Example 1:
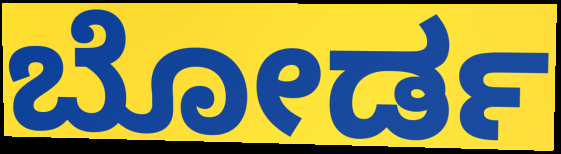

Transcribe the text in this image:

ಬೋರ್ಡ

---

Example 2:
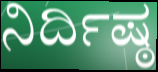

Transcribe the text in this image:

ನಿರ್ದಿಷ್ಠ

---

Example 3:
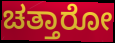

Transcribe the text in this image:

ಚತ್ತಾರೋ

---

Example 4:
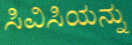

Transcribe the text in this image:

ಸಿವಿಸಿಯನ್ನು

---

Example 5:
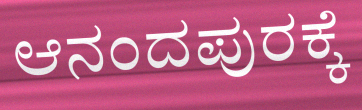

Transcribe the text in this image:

ಆನಂದಪುರಕ್ಕೆ